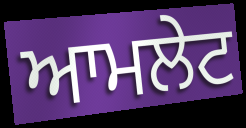
ਆਮਲੇਟ